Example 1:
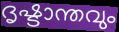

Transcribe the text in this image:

ദൃഷ്ടാന്തവും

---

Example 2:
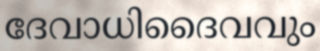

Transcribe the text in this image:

ദേവാധിദൈവവും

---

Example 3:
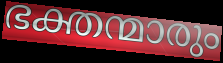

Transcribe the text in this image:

ഭക്തന്മാരും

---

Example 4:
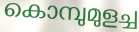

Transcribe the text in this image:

കൊമ്പുമുളച്ച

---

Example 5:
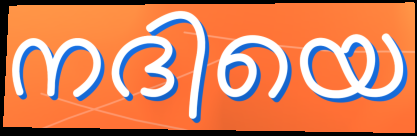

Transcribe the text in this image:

നദിയെ